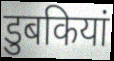
डुबकियां